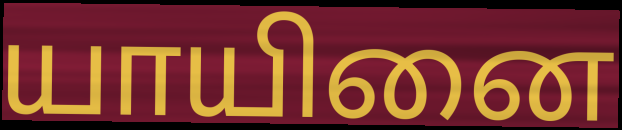
யாயினை